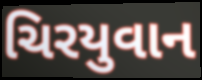
ચિરયુવાન